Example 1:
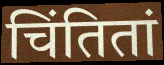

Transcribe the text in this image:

चिंतितां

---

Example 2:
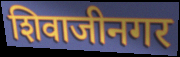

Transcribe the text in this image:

शिवाजीनगर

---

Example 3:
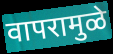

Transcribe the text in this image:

वापरामुळे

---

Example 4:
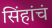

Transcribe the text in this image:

सिंहांचं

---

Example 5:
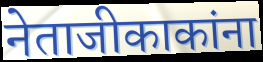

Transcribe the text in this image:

नेताजीकाकांना